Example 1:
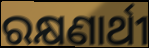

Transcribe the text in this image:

ରକ୍ଷଣାର୍ଥୀ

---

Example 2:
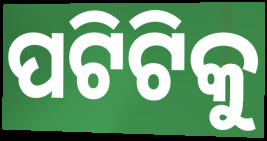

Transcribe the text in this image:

ପଟିଟିକୁ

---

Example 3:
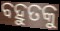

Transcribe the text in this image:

ବହୁତକୁ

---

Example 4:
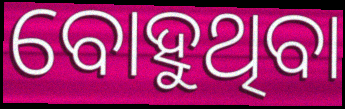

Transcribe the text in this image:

ବୋହୁଥିବା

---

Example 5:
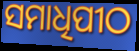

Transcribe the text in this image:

ସମାଧିପୀଠ